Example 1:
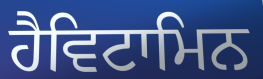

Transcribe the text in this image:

ਹੈਵਿਟਾਮਿਨ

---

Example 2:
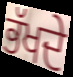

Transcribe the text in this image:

ਭੱਖਦੇ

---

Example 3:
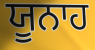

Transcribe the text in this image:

ਯੂਨਾਹ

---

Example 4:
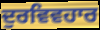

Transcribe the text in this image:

ਦੁਰਵਿਵਹਾਰ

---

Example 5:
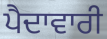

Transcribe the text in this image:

ਪੈਦਾਵਾਰੀ